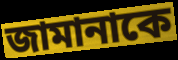
জামানাকে